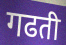
गढती